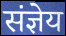
संज्ञेय